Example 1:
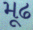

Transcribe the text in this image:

મૂઢ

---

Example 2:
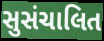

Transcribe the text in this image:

સુસંચાલિત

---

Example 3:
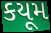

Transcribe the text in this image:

કયૂમ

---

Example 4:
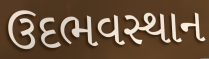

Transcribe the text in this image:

ઉદભવસ્થાન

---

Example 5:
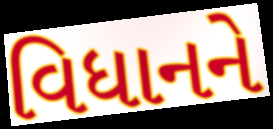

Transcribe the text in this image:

વિધાનને